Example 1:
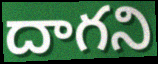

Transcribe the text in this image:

దాగని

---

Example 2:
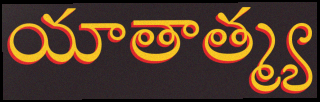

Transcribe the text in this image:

యాతాత్మ్య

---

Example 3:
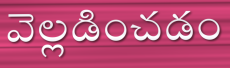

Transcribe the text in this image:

వెల్లడించడం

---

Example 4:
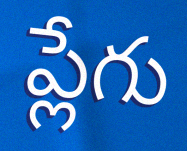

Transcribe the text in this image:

ప్లేగు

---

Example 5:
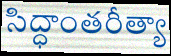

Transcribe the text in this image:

సిద్ధాంతరీత్యా